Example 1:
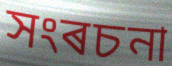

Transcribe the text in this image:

সংৰচনা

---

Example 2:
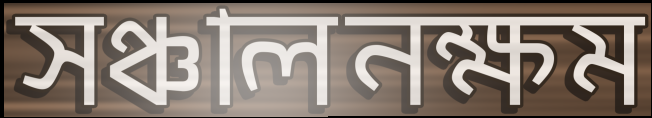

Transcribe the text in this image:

সঞ্চালনক্ষম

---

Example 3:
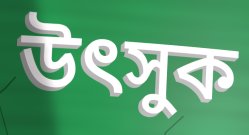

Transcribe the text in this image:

উৎসুক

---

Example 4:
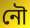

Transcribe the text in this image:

নৌ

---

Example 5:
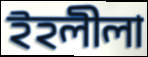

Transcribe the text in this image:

ইহলীলা